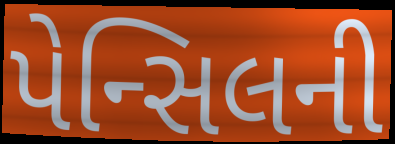
પેન્સિલની